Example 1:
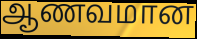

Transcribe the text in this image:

ஆணவமான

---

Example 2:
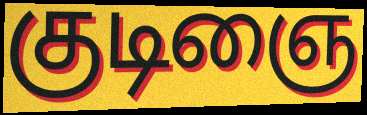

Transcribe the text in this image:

குடிஞை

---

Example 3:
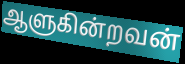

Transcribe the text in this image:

ஆளுகின்றவன்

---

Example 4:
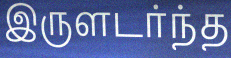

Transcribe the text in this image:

இருளடர்ந்த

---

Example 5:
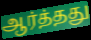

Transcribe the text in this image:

ஆர்த்தது